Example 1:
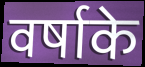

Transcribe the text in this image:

वर्षाके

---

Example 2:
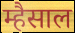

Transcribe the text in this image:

म्हैसाल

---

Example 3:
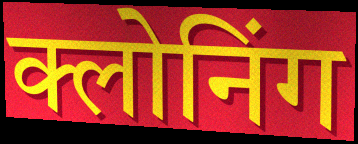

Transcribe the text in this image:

क्‍लोनिंग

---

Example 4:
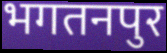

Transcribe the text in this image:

भगतनपुर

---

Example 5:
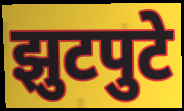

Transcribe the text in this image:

झुटपुटे